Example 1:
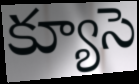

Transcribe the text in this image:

క్యూసె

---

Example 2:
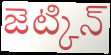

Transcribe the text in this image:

జెట్కిన్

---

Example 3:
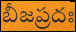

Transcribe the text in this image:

బీజప్రదః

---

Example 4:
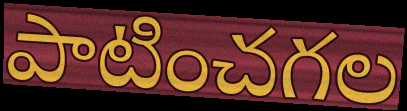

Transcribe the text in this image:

పాటించగల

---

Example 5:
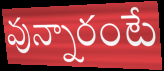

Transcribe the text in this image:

వున్నారంటే